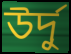
উৰ্দু